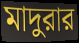
মাদুরার